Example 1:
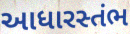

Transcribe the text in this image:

આધારસ્તંભ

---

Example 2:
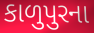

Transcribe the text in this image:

કાળુપુરના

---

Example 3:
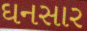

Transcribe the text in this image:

ઘનસાર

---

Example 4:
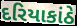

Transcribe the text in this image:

દરિયાકાંઠે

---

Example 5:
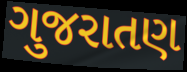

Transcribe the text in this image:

ગુજરાતણ